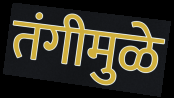
तंगीमुळे